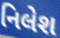
નિલેશ